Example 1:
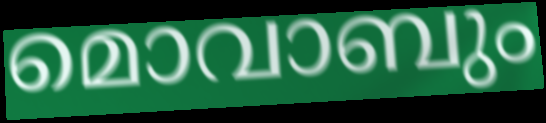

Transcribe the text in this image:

മൊവാബും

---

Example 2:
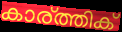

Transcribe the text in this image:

കാര്ത്തിക്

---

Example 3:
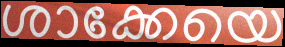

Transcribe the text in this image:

ശാക്കേയെ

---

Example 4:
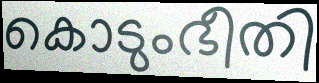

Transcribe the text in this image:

കൊടുംഭീതി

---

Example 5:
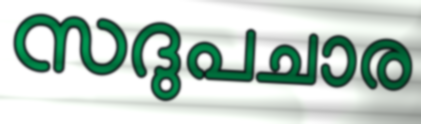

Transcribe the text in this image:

സദുപചാര